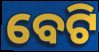
ବେଟି